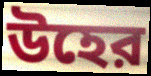
উহের